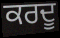
ਕਰਦੂ